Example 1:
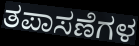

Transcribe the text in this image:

ತಪಾಸಣೆಗಳ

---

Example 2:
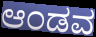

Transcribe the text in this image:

ಆಂಡವ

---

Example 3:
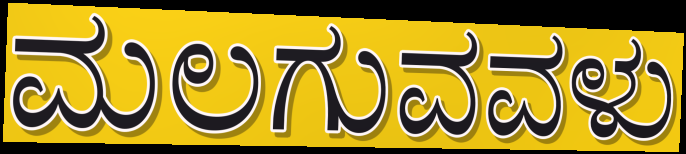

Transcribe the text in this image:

ಮಲಗುವವಳು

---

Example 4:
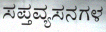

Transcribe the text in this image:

ಸಪ್ತವ್ಯಸನಗಳ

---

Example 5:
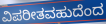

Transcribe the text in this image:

ವಿಪರೀತವಹುದೆಂದ